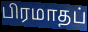
பிரமாதப்